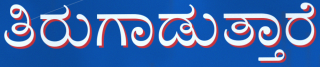
ತಿರುಗಾಡುತ್ತಾರೆ